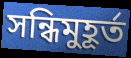
সন্ধিমুহূর্ত